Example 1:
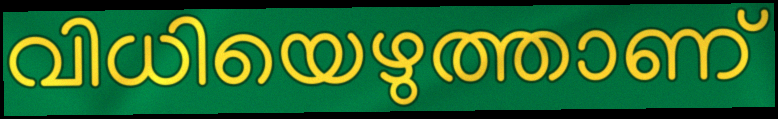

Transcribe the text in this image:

വിധിയെഴുത്താണ്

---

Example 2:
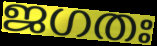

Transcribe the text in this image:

ജഗതഃ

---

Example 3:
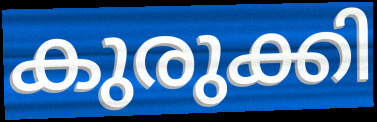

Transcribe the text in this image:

കുരുക്കി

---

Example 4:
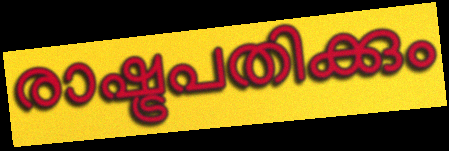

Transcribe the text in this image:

രാഷ്ട്രപതിക്കും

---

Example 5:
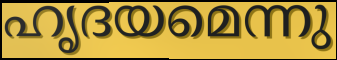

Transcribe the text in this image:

ഹൃദയമെന്നു